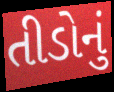
તીડોનું